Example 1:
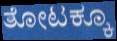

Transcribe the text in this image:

ತೋಟಕ್ಕೂ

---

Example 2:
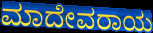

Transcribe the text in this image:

ಮಾದೇವರಾಯ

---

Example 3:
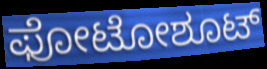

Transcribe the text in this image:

ಫೋಟೋಶೂಟ್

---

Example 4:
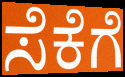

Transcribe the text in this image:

ಸೆಕೆಗೆ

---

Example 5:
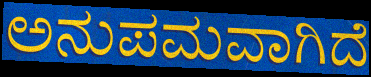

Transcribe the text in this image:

ಅನುಪಮವಾಗಿದೆ